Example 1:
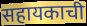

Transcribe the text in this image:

सहायकाची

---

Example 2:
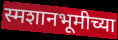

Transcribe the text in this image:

स्मशानभूमीच्या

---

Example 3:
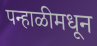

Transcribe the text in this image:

पन्हाळीमधून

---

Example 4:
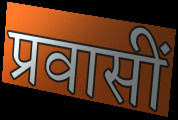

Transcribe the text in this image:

प्रवासीं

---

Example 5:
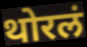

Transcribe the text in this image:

थोरलं